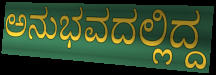
ಅನುಭವದಲ್ಲಿದ್ದ